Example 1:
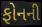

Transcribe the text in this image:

ફોનની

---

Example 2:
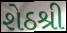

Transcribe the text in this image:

શેઠશ્રી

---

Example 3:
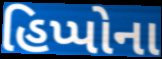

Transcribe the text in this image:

હિપ્પોના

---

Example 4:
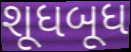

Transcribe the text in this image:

શૂધબૂધ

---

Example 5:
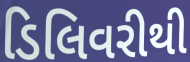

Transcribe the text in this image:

ડિલિવરીથી